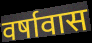
वर्षावास